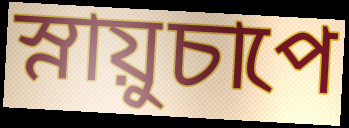
স্নায়ুচাপে